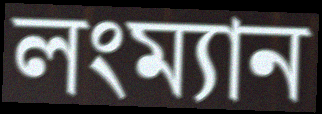
লংম্যান